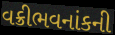
વક્રીભવનાંકની